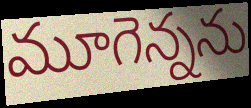
మూగెన్నను